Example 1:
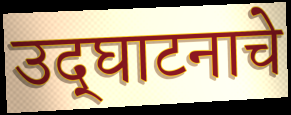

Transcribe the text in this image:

उद्‌घाटनाचे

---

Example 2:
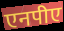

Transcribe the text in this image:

एनपीए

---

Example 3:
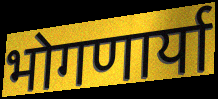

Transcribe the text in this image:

भोगणार्या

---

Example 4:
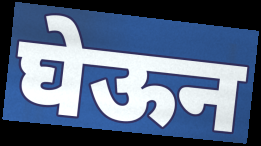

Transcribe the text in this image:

घेऊन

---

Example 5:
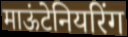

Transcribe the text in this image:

माऊंटेनियरिंग